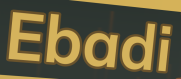
Ebadi